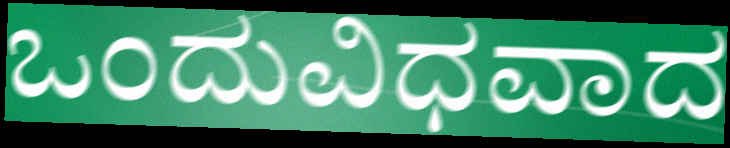
ಒಂದುವಿಧವಾದ